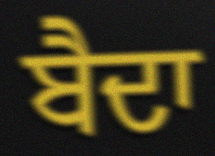
ਬੈਦਾ